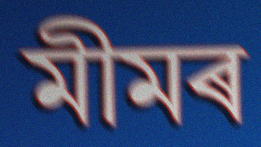
মীমৰ